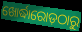
ଖୋର୍ଦ୍ଧାରୋଡ଼ଠାରୁ